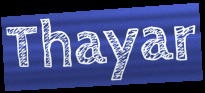
Thayar